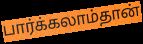
பார்க்கலாம்தான்